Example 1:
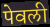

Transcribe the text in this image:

पेवली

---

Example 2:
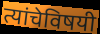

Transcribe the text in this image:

त्यांचेविषयी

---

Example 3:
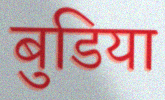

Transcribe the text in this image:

बुडिया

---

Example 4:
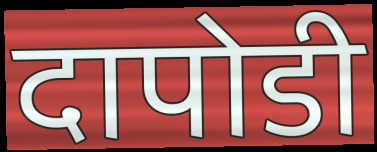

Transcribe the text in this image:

दापोडी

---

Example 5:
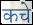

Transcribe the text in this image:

कचे